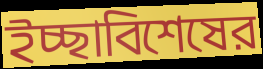
ইচ্ছাবিশেষের